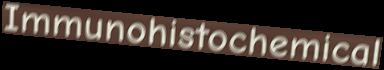
Immunohistochemical